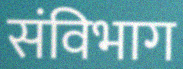
संविभाग